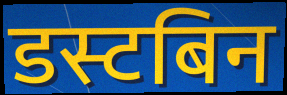
डस्टबिन